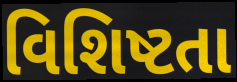
વિશિષ્ટતા